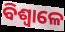
ବିଶ୍ଵାଳେ